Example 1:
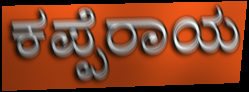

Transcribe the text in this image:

ಕಪ್ಪೆರಾಯ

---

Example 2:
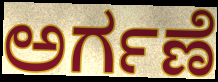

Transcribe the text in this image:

ಅರ್ಗಣೆ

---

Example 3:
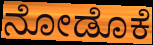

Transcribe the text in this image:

ನೋಡೊಕೆ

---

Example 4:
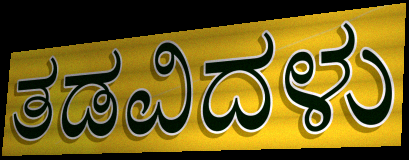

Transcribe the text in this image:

ತಡವಿದಳು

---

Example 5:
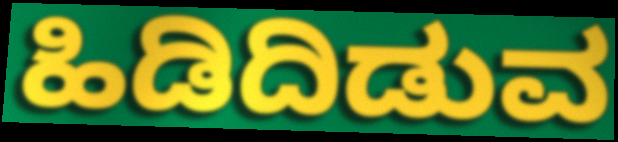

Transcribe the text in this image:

ಹಿಡಿದಿಡುವ